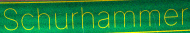
Schurhammer